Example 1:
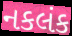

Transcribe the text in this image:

નકલંક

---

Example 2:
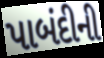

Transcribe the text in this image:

પાબંદીની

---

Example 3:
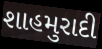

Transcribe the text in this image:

શાહમુરાદી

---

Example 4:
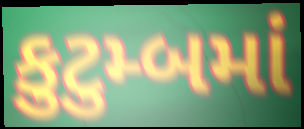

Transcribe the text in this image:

કુટુમ્બમાં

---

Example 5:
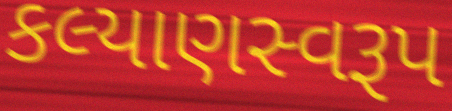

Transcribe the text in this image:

કલ્યાણસ્વરૂપ